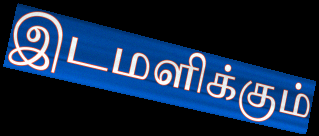
இடமளிக்கும்